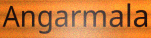
Angarmala